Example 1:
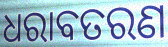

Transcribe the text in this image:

ଧରାବତରଣ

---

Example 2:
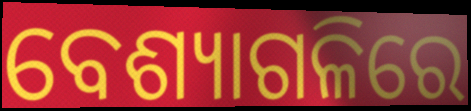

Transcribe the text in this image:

ବେଶ୍ୟାଗଳିରେ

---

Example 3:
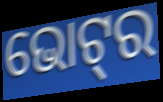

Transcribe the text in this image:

ଭୋଟ୍‍ର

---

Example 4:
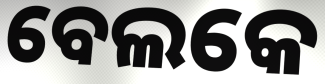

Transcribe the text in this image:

ବେଲକେ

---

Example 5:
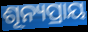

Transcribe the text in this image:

ଶୂନ୍ୟପ୍ରାୟ